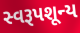
સ્વરૂપશૂન્ય